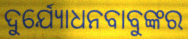
ଦୁର୍ଯ୍ୟୋଧନବାବୁଙ୍କର